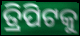
ତ୍ରିପିଟକୁ